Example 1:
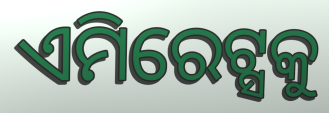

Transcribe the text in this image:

ଏମିରେଟ୍ସକୁ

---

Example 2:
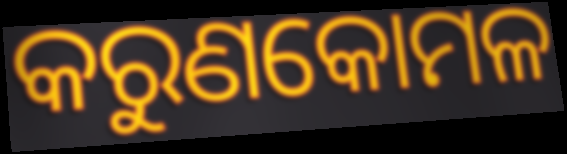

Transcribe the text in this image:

କରୁଣକୋମଳ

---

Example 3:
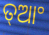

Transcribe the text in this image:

ତ୍ଆଂ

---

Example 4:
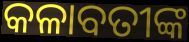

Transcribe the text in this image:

କଳାବତୀଙ୍କ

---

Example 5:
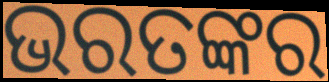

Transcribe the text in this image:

ଭରତଙ୍କର